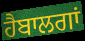
ਹੈਬਾਲਗਾਂ